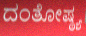
ದಂತೋಷ್ಠ್ಯ